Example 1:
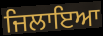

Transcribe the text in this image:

ਜਿਲਾਇਆ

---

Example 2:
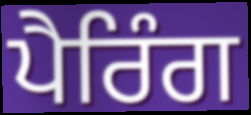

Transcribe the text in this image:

ਪੈਰਿੰਗ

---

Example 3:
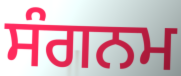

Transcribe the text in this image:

ਸੰਗਨਮ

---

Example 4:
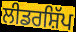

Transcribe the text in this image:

ਲੀਡਰਸ਼ਿੱਪ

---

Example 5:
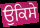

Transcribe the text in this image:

ਉਕਿਸੇ